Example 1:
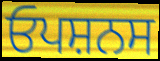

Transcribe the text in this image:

ਓਪਸ਼ਨਸ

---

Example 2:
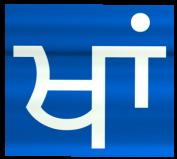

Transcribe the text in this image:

ਖਾਂ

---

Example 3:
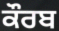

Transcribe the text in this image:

ਕੌਰਬ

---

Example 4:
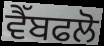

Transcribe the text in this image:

ਵੈੱਬਫਲੋ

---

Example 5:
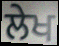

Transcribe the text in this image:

ਲੇਖ